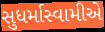
સુધર્માસ્વામીએ